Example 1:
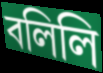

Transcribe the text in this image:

বলিলি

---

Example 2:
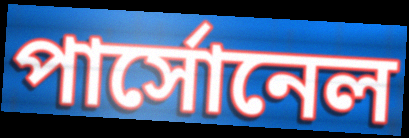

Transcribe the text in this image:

পার্সোনেল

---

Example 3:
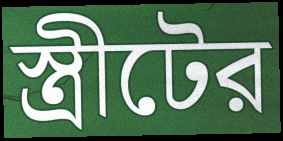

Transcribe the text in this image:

স্ত্রীটের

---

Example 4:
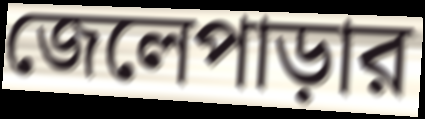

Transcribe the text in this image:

জেলেপাড়ার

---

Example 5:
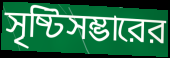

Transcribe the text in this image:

সৃষ্টিসম্ভারের